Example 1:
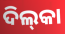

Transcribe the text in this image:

ଦିଲ୍‌କା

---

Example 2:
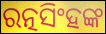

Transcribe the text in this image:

ରତ୍ନସିଂହଙ୍କ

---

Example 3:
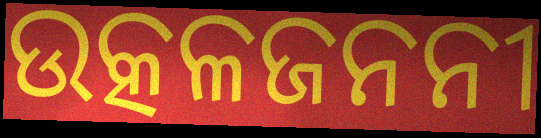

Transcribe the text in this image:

ଉତ୍କଳଜନନୀ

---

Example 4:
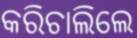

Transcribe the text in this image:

କରିଚାଲିଲେ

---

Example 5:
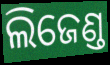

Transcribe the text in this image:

ଲିଜେଣ୍ଡ